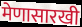
मेणासारखी